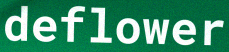
deflower